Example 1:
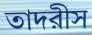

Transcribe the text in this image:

তাদরীস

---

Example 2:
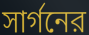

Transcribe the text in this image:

সার্গনের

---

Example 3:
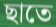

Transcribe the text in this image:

ছাতে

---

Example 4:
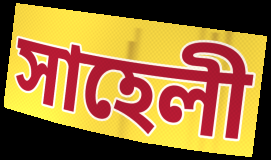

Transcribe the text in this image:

সাহেলী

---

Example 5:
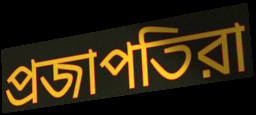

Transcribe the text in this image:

প্রজাপতিরা